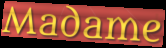
Madame